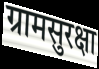
ग्रामसुरक्षा